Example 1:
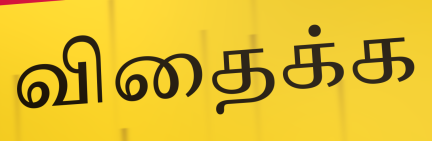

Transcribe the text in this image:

விதைக்க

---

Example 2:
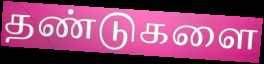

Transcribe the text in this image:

தண்டுகளை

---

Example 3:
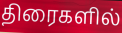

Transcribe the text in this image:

திரைகளில்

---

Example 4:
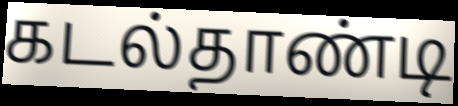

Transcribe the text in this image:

கடல்தாண்டி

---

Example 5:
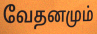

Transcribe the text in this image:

வேதனமும்